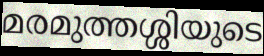
മരമുത്തശ്ശിയുടെ